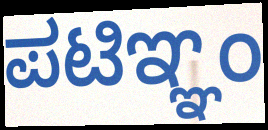
ಪಟಿಞ್ಞಂ